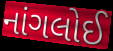
નાંગલોઈ